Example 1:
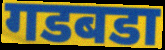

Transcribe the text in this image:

गडबडा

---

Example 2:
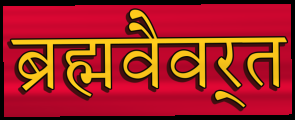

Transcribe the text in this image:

ब्रह्मवैवर्त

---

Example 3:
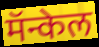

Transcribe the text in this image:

मॅन्केल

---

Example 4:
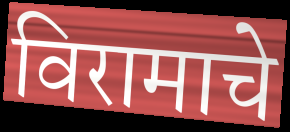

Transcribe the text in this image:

विरामाचे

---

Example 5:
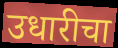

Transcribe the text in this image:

उधारीचा